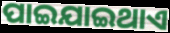
ପାଇଯାଇଥାଏ